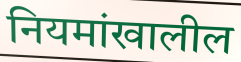
नियमांखालील